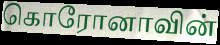
கொரோனாவின்